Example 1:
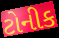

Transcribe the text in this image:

ટોનીક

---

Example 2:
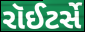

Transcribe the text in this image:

રૉઈટર્સે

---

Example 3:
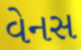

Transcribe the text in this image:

વેનસ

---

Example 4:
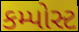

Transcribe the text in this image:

કમ્પોસ્ટ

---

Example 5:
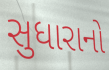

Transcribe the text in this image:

સુધારાનો